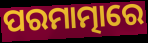
ପରମାତ୍ମାରେ